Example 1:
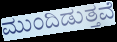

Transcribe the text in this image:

ಮುಂದಿಡುತ್ತವೆ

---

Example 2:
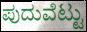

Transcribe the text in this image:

ಪುದುವೆಟ್ಟು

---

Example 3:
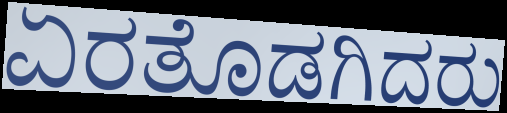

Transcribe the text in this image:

ಏರತೊಡಗಿದರು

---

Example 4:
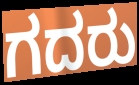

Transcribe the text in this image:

ಗದರು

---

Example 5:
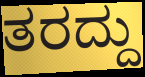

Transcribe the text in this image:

ತರದ್ದು